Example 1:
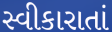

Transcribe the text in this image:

સ્વીકારાતાં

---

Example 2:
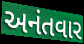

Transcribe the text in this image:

અનંતવાર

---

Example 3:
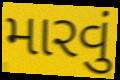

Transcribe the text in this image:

મારવું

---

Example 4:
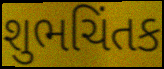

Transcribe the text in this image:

શુભચિંતક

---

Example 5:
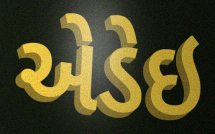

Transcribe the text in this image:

એડેઇ